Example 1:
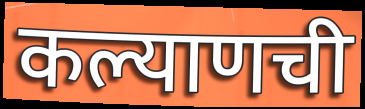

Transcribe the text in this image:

कल्याणची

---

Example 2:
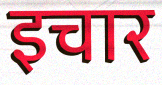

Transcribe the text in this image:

इचार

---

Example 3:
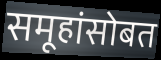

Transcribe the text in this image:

समूहांसोबत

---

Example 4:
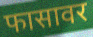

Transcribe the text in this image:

फासावर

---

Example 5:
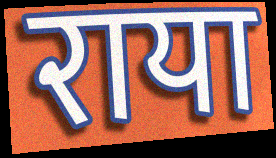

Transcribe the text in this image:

राया